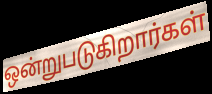
ஒன்றுபடுகிறார்கள்